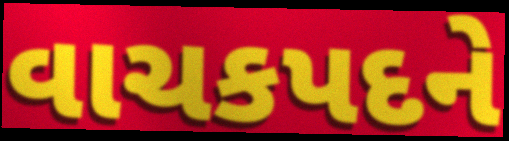
વાચકપદને